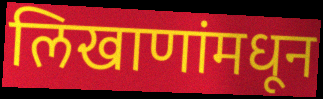
लिखाणांमधून